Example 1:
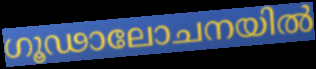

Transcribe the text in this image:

ഗൂഢാലോചനയിൽ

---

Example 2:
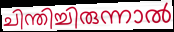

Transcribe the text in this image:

ചിന്തിച്ചിരുന്നാൽ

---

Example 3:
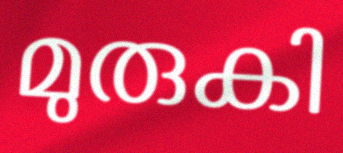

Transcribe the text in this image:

മുരുകി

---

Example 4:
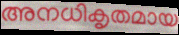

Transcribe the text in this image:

അനധികൃതമായ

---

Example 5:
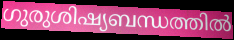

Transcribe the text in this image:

ഗുരുശിഷ്യബന്ധത്തിൽ